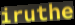
iruthe